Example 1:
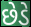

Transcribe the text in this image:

છેડે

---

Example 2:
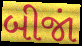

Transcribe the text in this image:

બીજાં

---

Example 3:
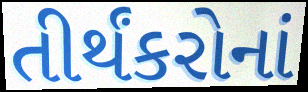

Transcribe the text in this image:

તીર્થંકરોનાં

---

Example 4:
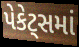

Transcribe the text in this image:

પેકેટ્સમાં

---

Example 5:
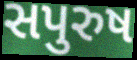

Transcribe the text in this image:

સપુરુષ